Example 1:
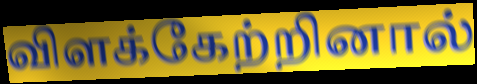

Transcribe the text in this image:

விளக்கேற்றினால்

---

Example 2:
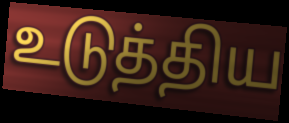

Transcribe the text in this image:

உடுத்திய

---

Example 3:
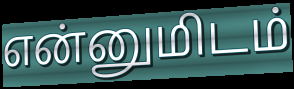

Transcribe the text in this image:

என்னுமிடம்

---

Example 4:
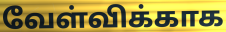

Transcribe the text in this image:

வேள்விக்காக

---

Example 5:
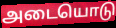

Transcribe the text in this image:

அடையொடு